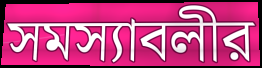
সমস্যাবলীর